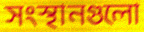
সংস্থানগুলো